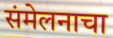
संमेलनाचा